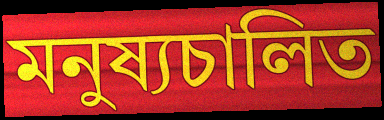
মনুষ্যচালিত